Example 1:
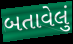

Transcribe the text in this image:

બતાવેલું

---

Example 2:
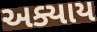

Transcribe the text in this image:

અક્યાય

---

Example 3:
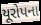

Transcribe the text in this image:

યૂરોપના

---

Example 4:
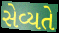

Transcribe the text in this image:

સેવ્યતે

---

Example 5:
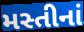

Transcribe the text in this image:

મસ્તીનાં